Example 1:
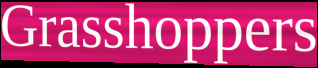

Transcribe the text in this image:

Grasshoppers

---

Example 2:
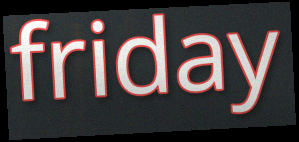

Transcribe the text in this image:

friday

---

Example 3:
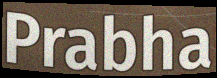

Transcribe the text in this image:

Prabha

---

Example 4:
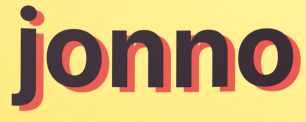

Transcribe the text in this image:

jonno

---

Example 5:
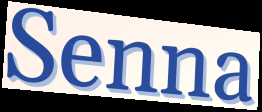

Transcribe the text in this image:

Senna